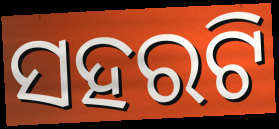
ସହରଟି